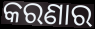
କରଣାର